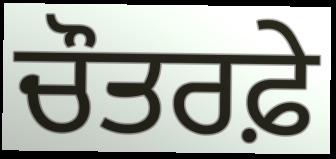
ਚੌਤਰਫ਼ੇ